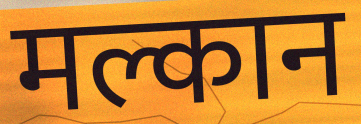
मल्कान